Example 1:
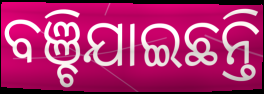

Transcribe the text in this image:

ବଞ୍ଚିଯାଇଛନ୍ତି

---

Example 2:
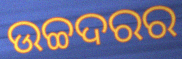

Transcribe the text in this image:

ଉଚ୍ଚଦରର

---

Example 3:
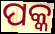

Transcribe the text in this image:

ପକ୍କ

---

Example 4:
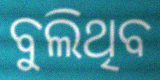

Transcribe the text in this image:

ବୁଲିଥିବ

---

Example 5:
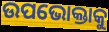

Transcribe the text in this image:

ଉପଭୋକ୍ତାକୁ